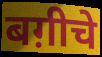
बग़ीचे